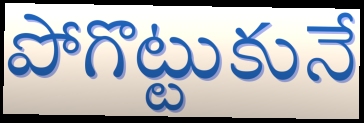
పోగొట్టుకునే